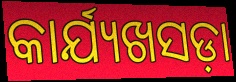
କାର୍ଯ୍ୟଖସଡ଼ା